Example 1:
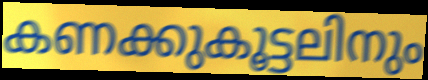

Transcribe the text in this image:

കണക്കുകൂട്ടലിനും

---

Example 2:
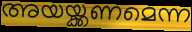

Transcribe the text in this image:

അയയ്ക്കണമെന്ന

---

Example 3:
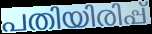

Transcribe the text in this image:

പതിയിരിപ്പ്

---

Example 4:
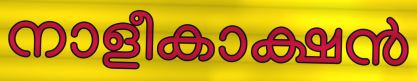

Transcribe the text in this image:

നാളീകാക്ഷൻ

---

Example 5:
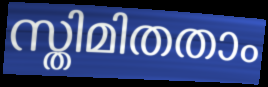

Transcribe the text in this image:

സ്തിമിതതാം